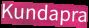
Kundapra